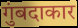
गुंबदाकार